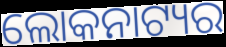
ଲୋକନାଟ୍ୟର